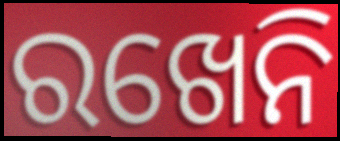
ରଖେନି